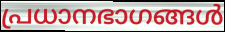
പ്രധാനഭാഗങ്ങൾ